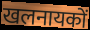
खलनायकों